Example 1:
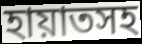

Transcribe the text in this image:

হায়াতসহ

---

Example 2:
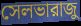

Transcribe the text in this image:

সেলভারাজু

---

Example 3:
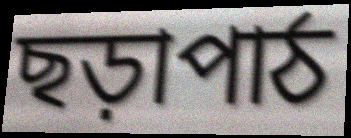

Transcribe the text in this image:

ছড়াপাঠ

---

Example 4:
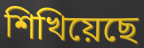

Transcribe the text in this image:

শিখিয়েছে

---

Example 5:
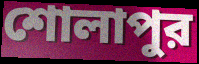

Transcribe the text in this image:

শোলাপুর